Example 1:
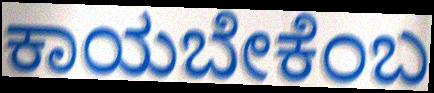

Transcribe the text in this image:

ಕಾಯಬೇಕೆಂಬ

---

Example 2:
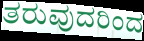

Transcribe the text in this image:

ತರುವುದರಿಂದ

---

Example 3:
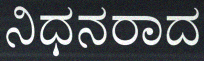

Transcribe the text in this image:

ನಿಧನರಾದ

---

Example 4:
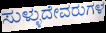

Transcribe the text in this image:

ಸುಳ್ಳುದೇವರುಗಳ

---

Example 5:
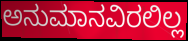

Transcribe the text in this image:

ಅನುಮಾನವಿರಲಿಲ್ಲ